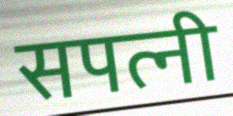
सपत्नी